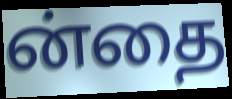
ன்தை